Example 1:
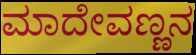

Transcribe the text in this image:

ಮಾದೇವಣ್ಣನ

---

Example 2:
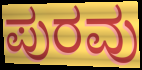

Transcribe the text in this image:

ಪುರವು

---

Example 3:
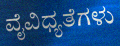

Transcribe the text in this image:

ವೈವಿಧ್ಯತೆಗಳು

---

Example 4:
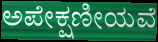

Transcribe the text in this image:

ಅಪೇಕ್ಷಣೀಯವೆ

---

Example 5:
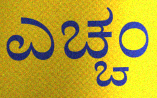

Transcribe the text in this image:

ಎಚ್ಚಂ